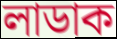
লাডাক